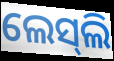
ଲେସ୍‍ଲି